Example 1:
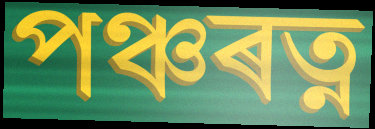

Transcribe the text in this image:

পঞ্চৰত্ন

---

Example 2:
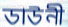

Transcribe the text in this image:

ডাউনী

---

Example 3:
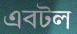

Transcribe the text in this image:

এবটল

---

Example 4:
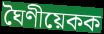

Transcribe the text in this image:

ঘৈণীয়েকক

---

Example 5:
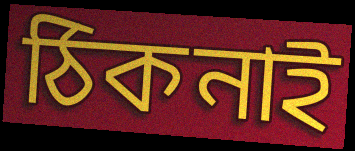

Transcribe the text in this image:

ঠিকনাই